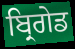
ਬ੍ਰਿਗੇਡ